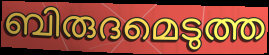
ബിരുദമെടുത്ത